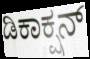
ಡಿಕಾಕ್ಷನ್